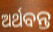
ଅର୍ଥବନ୍ତ